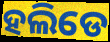
ହଲିଡେ